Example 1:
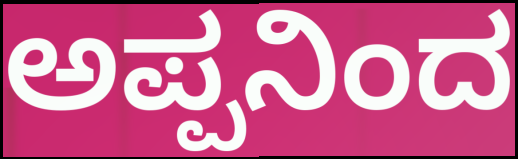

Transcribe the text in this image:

ಅಪ್ಪನಿಂದ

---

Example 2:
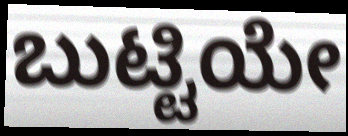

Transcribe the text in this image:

ಬುಟ್ಟಿಯೇ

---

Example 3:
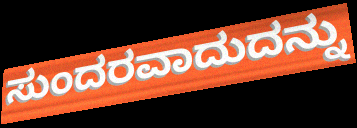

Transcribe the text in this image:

ಸುಂದರವಾದುದನ್ನು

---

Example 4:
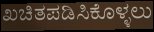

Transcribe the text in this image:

ಖಚಿತಪಡಿಸಿಕೊಳ್ಳಲು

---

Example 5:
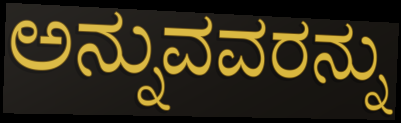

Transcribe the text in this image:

ಅನ್ನುವವರನ್ನು